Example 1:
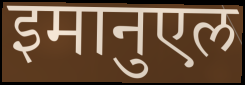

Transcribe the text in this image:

इमानुएल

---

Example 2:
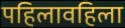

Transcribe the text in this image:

पहिलावहिला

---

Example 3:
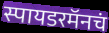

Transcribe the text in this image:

स्पायडरमॅनचं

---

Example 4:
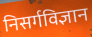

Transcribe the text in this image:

निसर्गविज्ञान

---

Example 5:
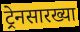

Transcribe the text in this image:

ट्रेनसारख्या